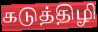
கடுத்திழி